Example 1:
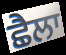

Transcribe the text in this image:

ਛੈਲਾ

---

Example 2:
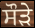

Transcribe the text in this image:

ਸੌੜੇ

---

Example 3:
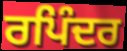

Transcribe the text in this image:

ਰਪਿੰਦਰ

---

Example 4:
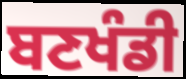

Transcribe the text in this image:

ਬਣਖੰਡੀ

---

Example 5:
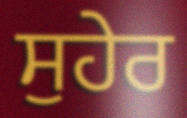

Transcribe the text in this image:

ਸੁਹੇਰ